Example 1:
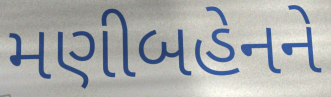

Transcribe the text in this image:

મણીબહેનને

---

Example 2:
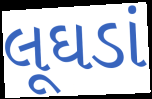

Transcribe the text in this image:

લૂઘડાં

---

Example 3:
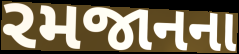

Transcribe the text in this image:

રમજાનના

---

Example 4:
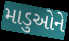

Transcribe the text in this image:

માડુઓને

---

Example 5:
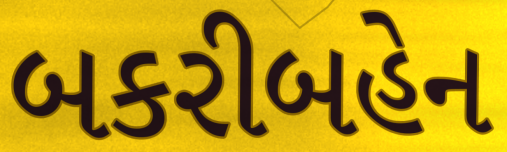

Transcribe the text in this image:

બકરીબહેન